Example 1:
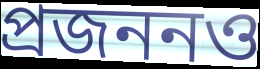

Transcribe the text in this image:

প্রজননও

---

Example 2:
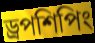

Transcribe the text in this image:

ড্রপশিপিং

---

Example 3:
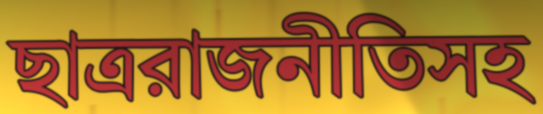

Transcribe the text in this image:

ছাত্ররাজনীতিসহ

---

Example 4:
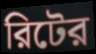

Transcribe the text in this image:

রিটের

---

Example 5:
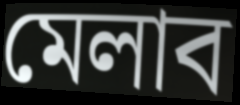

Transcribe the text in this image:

মেলাব